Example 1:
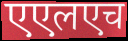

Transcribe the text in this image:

एएलएच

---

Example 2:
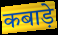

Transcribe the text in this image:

कबाड़े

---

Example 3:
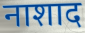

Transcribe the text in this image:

नाशाद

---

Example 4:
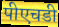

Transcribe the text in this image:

पीएचडी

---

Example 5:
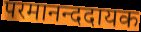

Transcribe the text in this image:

परमानन्ददायक